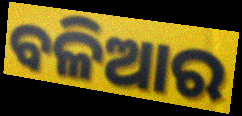
ବଳିଆର